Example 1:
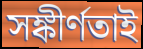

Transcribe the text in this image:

সঙ্কীর্ণতাই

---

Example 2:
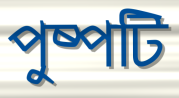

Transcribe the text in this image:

পুষ্পটি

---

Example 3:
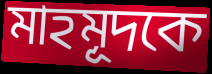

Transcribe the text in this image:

মাহমূদকে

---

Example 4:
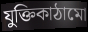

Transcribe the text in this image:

যুক্তিকাঠামো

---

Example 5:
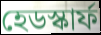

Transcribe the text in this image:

হেডস্কার্ফ